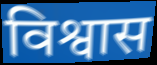
विश्वास